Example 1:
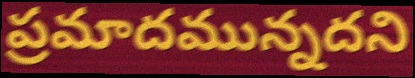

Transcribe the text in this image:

ప్రమాదమున్నదని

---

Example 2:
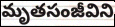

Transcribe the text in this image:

మృతసంజీవిని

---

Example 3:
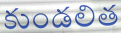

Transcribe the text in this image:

కుండలిత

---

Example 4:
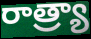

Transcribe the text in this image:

రాత్ర్యా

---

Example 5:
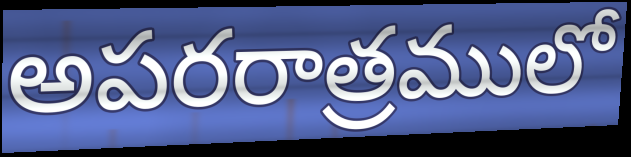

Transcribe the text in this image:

అపరరాత్రములో